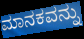
ಮಾನಕವನ್ನು